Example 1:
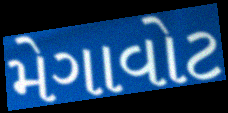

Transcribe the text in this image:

મેગાવોટ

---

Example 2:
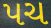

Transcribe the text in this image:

પચ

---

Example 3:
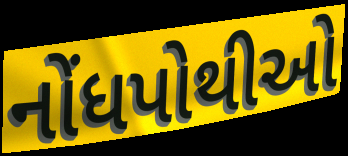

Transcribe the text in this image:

નોંધપોથીઓ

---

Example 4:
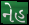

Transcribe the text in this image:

નેહ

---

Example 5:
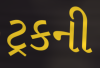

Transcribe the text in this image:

ટ્રકની